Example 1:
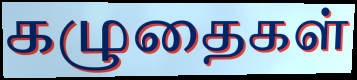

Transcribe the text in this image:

கழுதைகள்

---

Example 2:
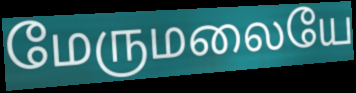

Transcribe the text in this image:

மேருமலையே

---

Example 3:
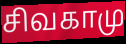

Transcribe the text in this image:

சிவகாமு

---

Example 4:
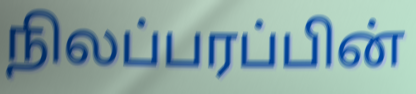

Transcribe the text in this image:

நிலப்பரப்பின்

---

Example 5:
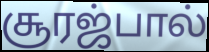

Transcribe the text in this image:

சூரஜ்பால்